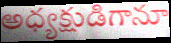
అధ్యక్షుడిగానూ